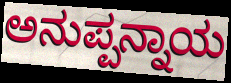
ಅನುಪ್ಪನ್ನಾಯ